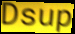
Dsup